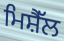
ਮਿਸ਼ੈੱਲ